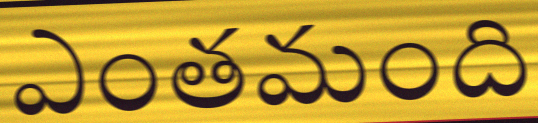
ఎంతమంది